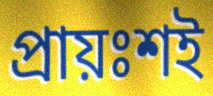
প্রায়ঃশই